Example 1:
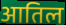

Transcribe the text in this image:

आतिल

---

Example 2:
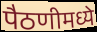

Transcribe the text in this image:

पैठणीमध्ये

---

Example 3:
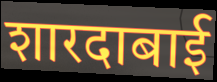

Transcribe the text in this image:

शारदाबाई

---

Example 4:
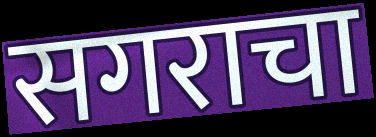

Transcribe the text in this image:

सगराचा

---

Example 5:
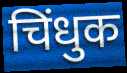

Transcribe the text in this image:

चिंधुक